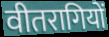
वीतरागियों